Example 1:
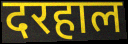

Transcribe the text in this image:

दरहाल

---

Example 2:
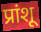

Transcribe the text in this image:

प्रांशू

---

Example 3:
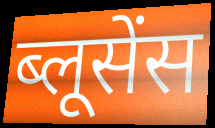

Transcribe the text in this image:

ब्लूसेंस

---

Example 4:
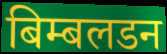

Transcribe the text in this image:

बिम्बलडन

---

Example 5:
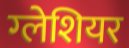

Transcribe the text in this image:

ग्‍लेशियर